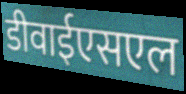
डीवाईएसएल